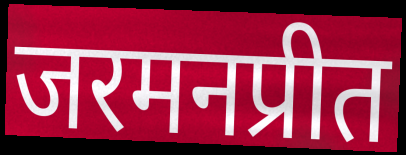
जरमनप्रीत